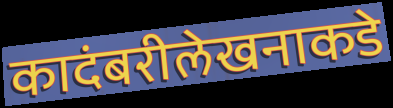
कादंबरीलेखनाकडे